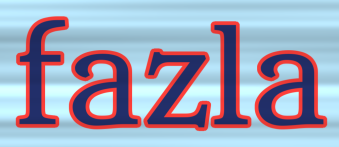
fazla